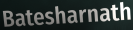
Batesharnath